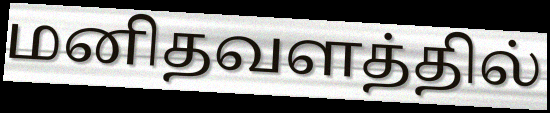
மனிதவளத்தில்